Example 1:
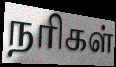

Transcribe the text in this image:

நரிகள்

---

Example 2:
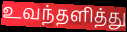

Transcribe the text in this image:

உவந்தளித்து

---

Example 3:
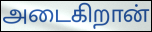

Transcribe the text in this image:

அடைகிறான்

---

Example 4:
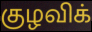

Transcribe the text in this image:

குழவிக்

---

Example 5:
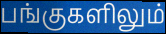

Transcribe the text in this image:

பங்குகளிலும்